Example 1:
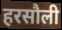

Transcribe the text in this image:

हरसौली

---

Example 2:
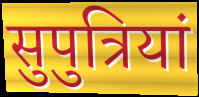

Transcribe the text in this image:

सुपुत्रियां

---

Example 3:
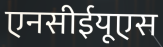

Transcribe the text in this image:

एनसीईयूएस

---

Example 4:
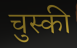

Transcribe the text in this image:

चुस्की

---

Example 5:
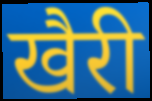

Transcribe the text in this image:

खैरी